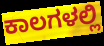
ಕಾಲಗಳಲ್ಲಿ